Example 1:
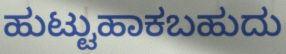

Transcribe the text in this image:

ಹುಟ್ಟುಹಾಕಬಹುದು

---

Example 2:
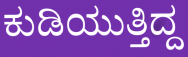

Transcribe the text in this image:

ಕುಡಿಯುತ್ತಿದ್ದ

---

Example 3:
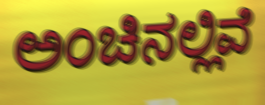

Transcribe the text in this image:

ಅಂಚಿನಲ್ಲಿವೆ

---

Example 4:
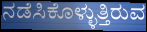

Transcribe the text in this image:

ನಡೆಸಿಕೊಳ್ಳುತ್ತಿರುವ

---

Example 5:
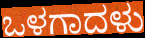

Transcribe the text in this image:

ಒಳಗಾದಳು